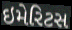
ઇમેરિટસ